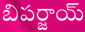
బిపర్జాయ్